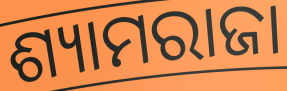
ଶ୍ୟାମରାଜା